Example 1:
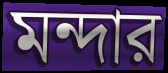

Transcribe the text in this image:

মন্দার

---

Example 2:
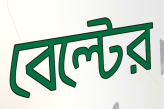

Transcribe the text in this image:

বেল্টের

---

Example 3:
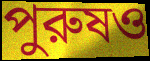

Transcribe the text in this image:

পুরুষও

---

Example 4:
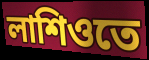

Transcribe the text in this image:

লাশিওতে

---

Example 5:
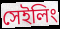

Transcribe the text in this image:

সেইলিং